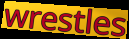
wrestles